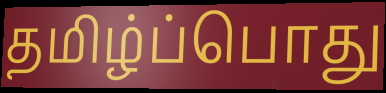
தமிழ்ப்பொது